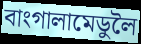
বাংগালামেডুলৈ